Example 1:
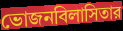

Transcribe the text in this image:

ভোজনবিলাসিতার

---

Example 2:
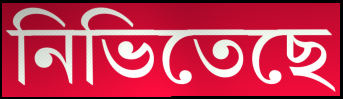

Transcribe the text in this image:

নিভিতেছে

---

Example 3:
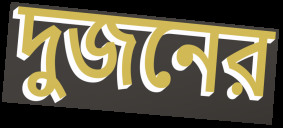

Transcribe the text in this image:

দুজনের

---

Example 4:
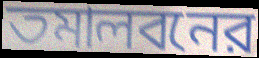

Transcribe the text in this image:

তমালবনের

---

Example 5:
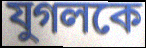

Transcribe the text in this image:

যুগলকে